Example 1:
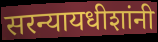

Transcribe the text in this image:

सरन्यायधीशांनी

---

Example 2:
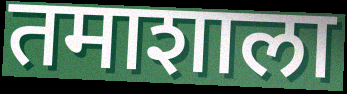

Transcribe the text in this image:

तमाशाला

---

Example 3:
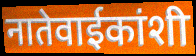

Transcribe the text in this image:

नातेवाईकांशी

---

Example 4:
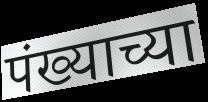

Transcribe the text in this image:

पंख्याच्या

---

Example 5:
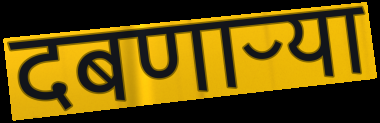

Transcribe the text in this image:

दबणाऱ्या